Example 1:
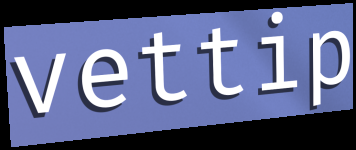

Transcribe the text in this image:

vettip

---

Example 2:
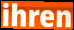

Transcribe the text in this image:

ihren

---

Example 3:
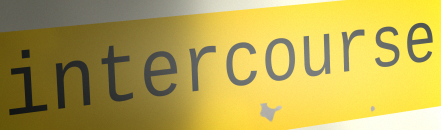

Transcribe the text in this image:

intercourse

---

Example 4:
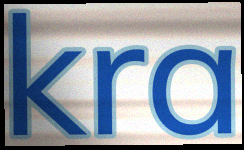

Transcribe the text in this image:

kra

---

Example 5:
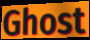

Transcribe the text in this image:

Ghost